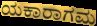
ಯಕಾರಾಗಮ